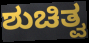
ಶುಚಿತ್ವ